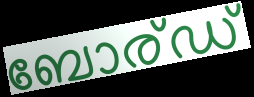
ബോര്ഡ്